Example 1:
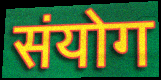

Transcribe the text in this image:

संयोग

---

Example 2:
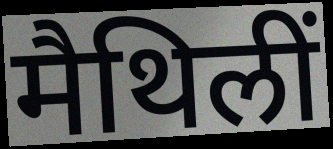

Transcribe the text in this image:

मैथिलीं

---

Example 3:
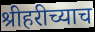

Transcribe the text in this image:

श्रीहरीच्याच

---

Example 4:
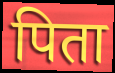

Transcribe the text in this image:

पिता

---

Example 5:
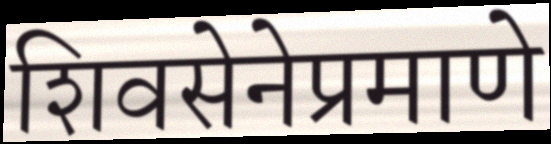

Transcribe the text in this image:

शिवसेनेप्रमाणे